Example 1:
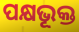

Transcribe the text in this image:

ପକ୍ଷଭୂକ୍ତ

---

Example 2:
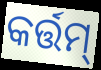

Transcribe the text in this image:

କର୍ତ୍ତମ୍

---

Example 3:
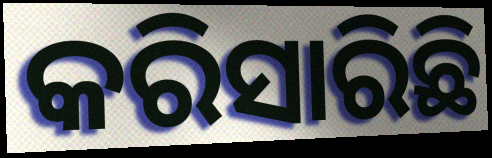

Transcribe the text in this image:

କରିସାରିଛି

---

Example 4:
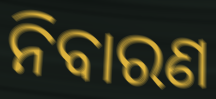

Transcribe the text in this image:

ନିବାରଣ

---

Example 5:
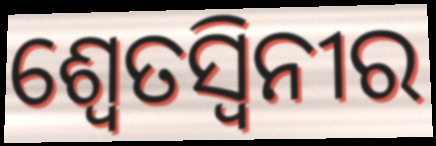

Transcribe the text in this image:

ଶ୍ୱେତସ୍ୱିନୀର